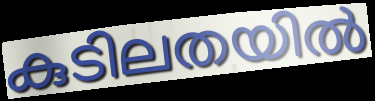
കുടിലതയിൽ